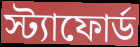
স্ট্যাফোর্ড